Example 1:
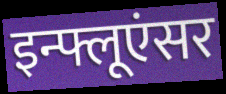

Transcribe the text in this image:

इन्फ्लूएंसर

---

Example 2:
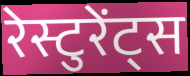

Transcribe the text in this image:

रेस्टुरेंट्स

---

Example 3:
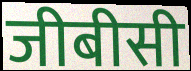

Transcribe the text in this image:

जीबीसी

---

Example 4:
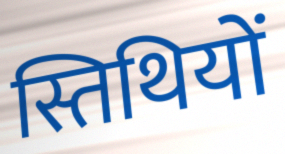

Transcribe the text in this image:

स्तिथियों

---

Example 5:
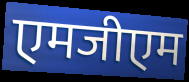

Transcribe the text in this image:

एमजीएम